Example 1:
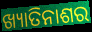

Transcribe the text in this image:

ଖ୍ୟାତିନାଶର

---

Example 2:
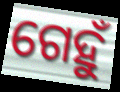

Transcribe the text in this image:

ଗେହୁଁ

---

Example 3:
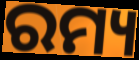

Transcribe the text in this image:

ରମ୍ୟ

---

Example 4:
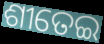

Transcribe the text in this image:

ଶୀତେଇ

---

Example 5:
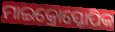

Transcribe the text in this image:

ମାଇକ୍ରୋସ୍କୋପିକ